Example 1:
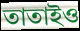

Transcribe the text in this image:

তাতাইও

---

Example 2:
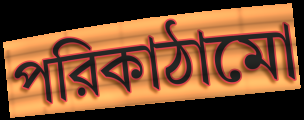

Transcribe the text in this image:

পরিকাঠামো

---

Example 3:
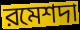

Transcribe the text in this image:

রমেশদা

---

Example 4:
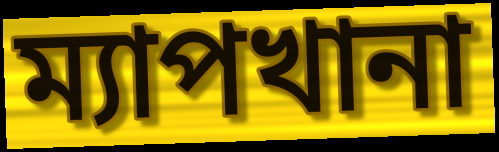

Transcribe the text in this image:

ম্যাপখানা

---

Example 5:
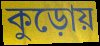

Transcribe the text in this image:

কুড়োয়